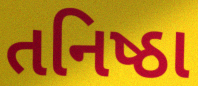
તનિષ્ઠા